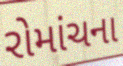
રોમાંચના